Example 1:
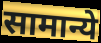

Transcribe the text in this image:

सामान्ये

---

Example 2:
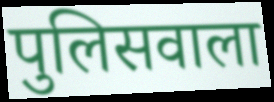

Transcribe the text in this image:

पुलिसवाला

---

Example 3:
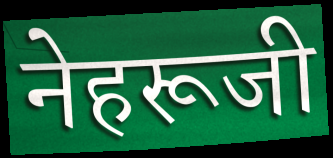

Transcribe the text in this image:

नेहरूजी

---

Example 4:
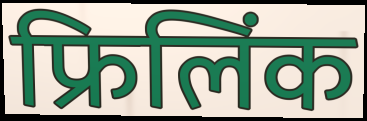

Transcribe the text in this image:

फ्रिलिंक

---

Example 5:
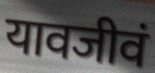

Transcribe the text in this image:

यावजीवं